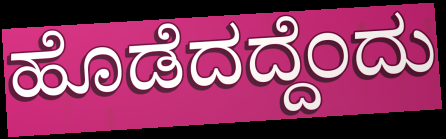
ಹೊಡೆದದ್ದೆಂದು